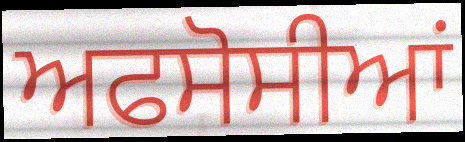
ਅਫਸੋਸੀਆਂ